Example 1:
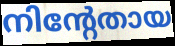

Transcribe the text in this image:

നിന്റേതായ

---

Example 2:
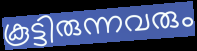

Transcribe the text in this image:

കൂട്ടിരുന്നവരും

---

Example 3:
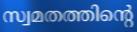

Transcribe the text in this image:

സ്വമതത്തിന്റെ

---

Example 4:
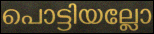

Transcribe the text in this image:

പൊട്ടിയല്ലോ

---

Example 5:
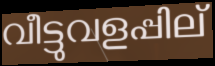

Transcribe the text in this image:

വീട്ടുവളപ്പില്